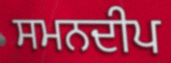
ਸਮਨਦੀਪ